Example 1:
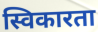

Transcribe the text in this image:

स्विकारता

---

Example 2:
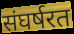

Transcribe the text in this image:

संघर्षरत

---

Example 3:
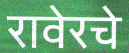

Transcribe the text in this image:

रावेरचे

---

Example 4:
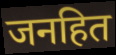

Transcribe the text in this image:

जनहित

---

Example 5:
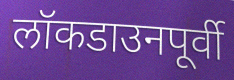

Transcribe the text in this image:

लॉकडाउनपूर्वी